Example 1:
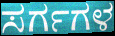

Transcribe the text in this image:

ಸರ್ಗಗಳ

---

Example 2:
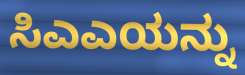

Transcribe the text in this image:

ಸಿಎಎಯನ್ನು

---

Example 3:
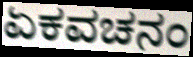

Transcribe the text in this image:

ಏಕವಚನಂ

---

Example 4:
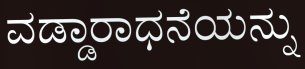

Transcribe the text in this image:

ವಡ್ಡಾರಾಧನೆಯನ್ನು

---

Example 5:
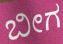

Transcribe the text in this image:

ಬೀಗ